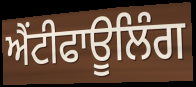
ਐਂਟੀਫਾਊਲਿੰਗ